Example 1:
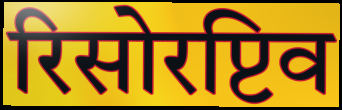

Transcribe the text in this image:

रिसोरप्टिव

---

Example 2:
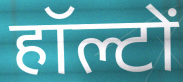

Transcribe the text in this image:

हॉल्टों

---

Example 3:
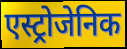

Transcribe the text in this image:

एस्ट्रोजेनिक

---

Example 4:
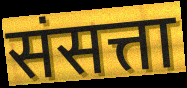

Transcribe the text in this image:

संसत्ता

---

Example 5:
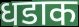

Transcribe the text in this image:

धडाक